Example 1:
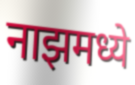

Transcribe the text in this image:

नाझमध्ये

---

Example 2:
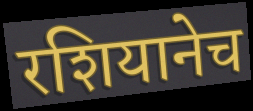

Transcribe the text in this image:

रशियानेच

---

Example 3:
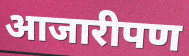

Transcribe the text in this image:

आजारीपण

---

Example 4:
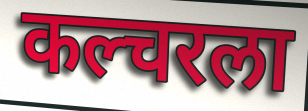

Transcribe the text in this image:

कल्चरला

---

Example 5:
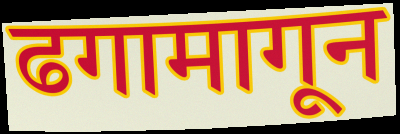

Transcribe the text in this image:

ढगामागून